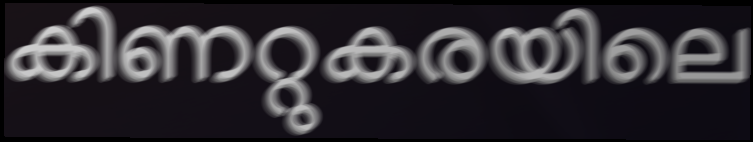
കിണറ്റുകരയിലെ